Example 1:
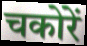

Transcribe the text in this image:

चकोरें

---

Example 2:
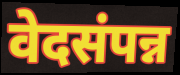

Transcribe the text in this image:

वेदसंपन्न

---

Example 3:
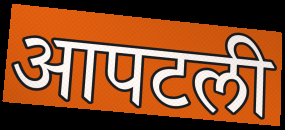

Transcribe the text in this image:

आपटली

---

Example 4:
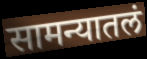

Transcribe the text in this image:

सामन्यातलं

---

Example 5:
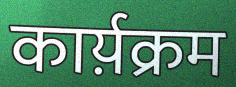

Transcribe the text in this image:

कार्य़क्रम